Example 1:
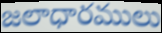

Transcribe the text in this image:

జలాధారములు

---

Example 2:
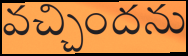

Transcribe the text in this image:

వచ్చిందను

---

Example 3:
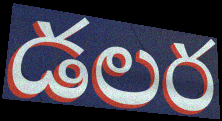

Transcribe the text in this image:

డలర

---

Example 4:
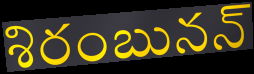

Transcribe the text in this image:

శిరంబునన్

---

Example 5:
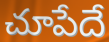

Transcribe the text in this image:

చూపేదే